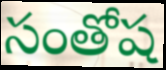
సంతోష